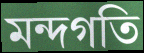
মন্দগতি